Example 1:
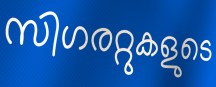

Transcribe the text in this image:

സിഗരറ്റുകളുടെ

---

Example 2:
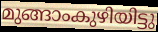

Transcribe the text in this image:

മുങ്ങാംകുഴിയിട്ടു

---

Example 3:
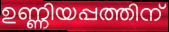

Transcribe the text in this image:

ഉണ്ണിയപ്പത്തിന്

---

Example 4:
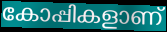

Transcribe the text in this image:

കോപ്പികളാണ്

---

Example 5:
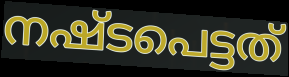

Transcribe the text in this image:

നഷ്ടപെട്ടത്